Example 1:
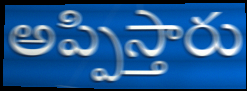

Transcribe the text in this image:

అప్పిస్తారు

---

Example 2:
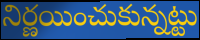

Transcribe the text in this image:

నిర్ణయించుకున్నట్టు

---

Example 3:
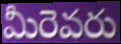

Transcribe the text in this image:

మీరెవరు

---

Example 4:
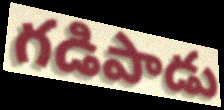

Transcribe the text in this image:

గడిపాడు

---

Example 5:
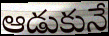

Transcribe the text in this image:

ఆడుకునే